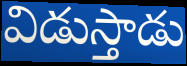
విడుస్తాడు